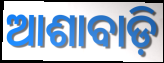
ଆଶାବାଡ଼ି